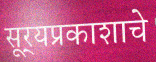
सूर्यप्रकाशाचे